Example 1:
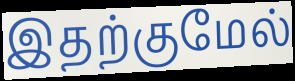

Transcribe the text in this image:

இதற்குமேல்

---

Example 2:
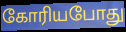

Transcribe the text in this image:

கோரியபோது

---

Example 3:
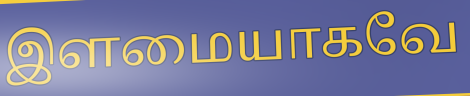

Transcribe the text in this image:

இளமையாகவே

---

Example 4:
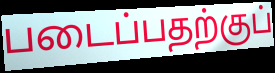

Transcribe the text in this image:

படைப்பதற்குப்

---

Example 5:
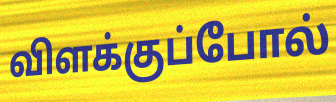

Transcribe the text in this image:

விளக்குப்போல்